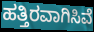
ಹತ್ತಿರವಾಗಿಸಿವೆ